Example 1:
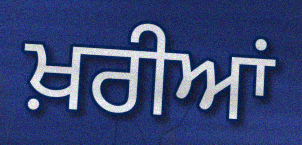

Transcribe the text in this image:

ਖ਼ਰੀਆਂ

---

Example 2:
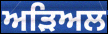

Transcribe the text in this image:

ਅੜਿਅਲ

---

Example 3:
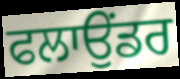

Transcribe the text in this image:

ਫਲਾਉਂਡਰ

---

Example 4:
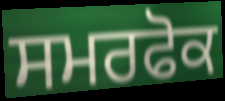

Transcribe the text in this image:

ਸਮਰਫੋਕ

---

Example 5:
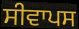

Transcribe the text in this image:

ਸੀਵਾਪਸ